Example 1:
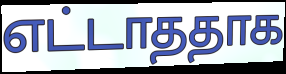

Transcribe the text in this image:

எட்டாததாக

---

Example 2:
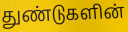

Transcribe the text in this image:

துண்டுகளின்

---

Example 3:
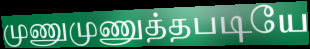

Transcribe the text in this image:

முணுமுணுத்தபடியே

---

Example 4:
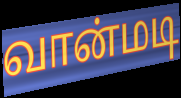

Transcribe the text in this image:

வான்மடி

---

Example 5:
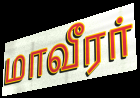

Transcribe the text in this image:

மாவீரர்